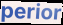
perior